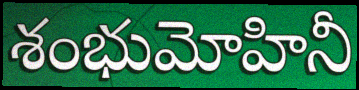
శంభుమోహినీ